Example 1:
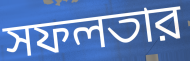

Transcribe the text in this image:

সফলতার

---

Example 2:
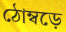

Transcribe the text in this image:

ঠোম্বড়ে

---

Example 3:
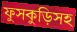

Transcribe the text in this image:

ফুসকুড়িসহ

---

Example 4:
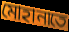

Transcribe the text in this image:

মোহানাতে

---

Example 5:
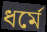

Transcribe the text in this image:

ধর্মে